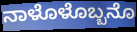
ನಾಳೊಳೊಬ್ಬನೊ